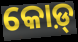
କୋଡ଼୍